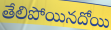
తేలిపోయినదోయి